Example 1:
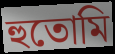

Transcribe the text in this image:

হুতোমি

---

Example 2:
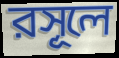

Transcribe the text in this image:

রসূলে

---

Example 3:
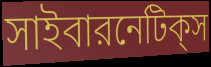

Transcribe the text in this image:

সাইবারনেটিক্‌স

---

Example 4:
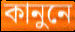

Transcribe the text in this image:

কানুনে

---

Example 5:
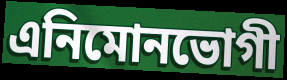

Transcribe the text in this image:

এনিমোনভোগী